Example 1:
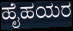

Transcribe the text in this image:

ಹೈಹಯರ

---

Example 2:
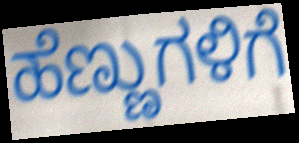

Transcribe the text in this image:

ಹೆಣ್ಣುಗಳಿಗೆ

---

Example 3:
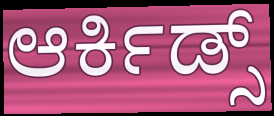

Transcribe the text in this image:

ಆರ್ಕಿಡ್ಸ್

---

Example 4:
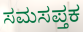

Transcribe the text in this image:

ಸಮಸಪ್ತಕ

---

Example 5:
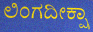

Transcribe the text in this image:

ಲಿಂಗದೀಕ್ಷಾ